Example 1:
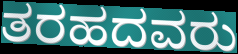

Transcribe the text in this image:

ತರಹದವರು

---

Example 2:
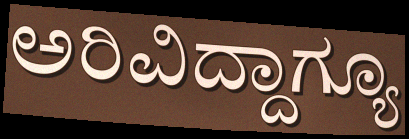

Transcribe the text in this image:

ಅರಿವಿದ್ದಾಗ್ಯೂ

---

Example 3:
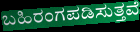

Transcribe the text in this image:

ಬಹಿರಂಗಪಡಿಸುತ್ತವೆ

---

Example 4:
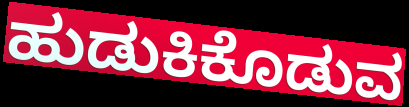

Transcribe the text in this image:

ಹುಡುಕಿಕೊಡುವ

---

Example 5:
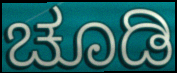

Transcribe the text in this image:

ಚೂಡಿ